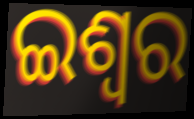
ଇଶ୍ଵର